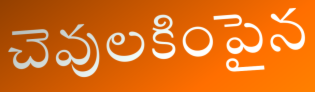
చెవులకింపైన